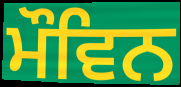
ਮੌਵਿਨ